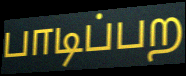
பாடிப்பற